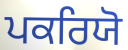
ਪਕਰਿਯੋ